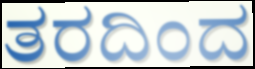
ತರದಿಂದ